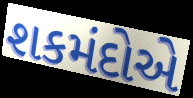
શકમંદોએ